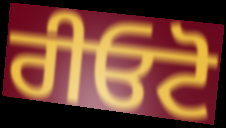
ਰੀਓਟੋ